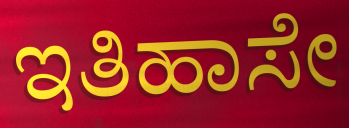
ಇತಿಹಾಸೇ